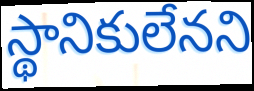
స్థానికులేనని